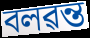
বলৱন্ত